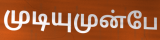
முடியுமுன்பே